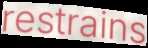
restrains